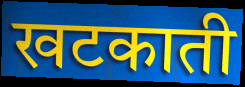
खटकाती